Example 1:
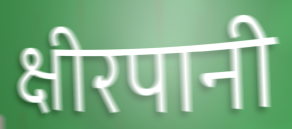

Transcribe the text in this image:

क्षीरपानी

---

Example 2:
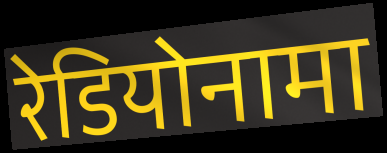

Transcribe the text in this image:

रेडियोनामा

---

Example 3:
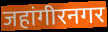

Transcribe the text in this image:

जहांगीरनगर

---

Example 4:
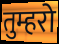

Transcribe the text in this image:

तुम्हरो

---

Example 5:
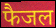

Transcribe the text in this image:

फैजल